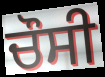
ਚੌਸੀ